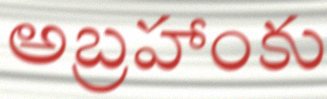
అబ్రహాంకు